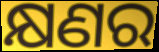
କ୍ଷଣର